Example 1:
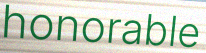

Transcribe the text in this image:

honorable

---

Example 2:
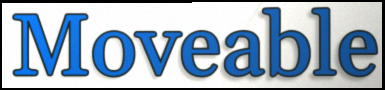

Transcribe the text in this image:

Moveable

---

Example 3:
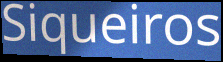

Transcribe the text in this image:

Siqueiros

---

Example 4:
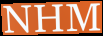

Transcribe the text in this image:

NHM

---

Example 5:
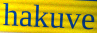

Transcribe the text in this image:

hakuve